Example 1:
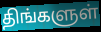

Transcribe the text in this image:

திங்களுள்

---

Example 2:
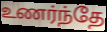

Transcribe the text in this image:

உணர்ந்தே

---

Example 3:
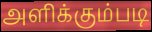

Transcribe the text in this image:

அளிக்கும்படி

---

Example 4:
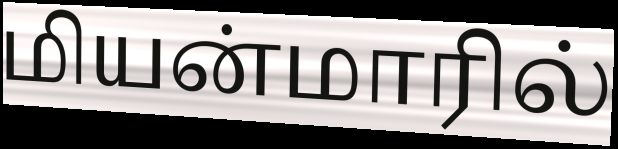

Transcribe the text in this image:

மியன்மாரில்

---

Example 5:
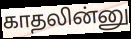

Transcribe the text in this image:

காதலின்னு